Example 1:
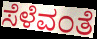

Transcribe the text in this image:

ಸೆಳೆವಂತೆ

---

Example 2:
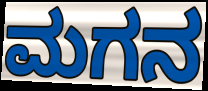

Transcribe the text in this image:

ಮಗನ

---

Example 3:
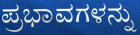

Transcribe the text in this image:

ಪ್ರಭಾವಗಳನ್ನು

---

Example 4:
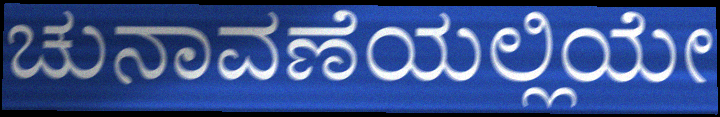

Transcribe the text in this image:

ಚುನಾವಣೆಯಲ್ಲಿಯೇ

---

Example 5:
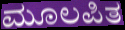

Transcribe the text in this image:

ಮೂಲಪಿತ